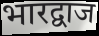
भारद्वाज